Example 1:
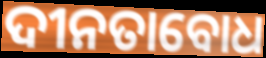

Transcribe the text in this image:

ଦୀନତାବୋଧ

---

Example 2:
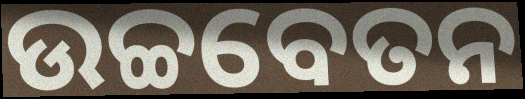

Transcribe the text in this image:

ଉଚ୍ଚବେତନ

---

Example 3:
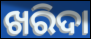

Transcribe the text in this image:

ଖରିଦା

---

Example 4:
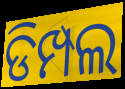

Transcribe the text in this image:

ଡିମ୍ପଲ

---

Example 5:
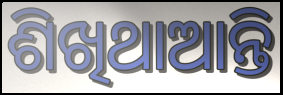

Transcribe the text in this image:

ଶିଖିଥାଆନ୍ତି